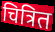
चित्रित